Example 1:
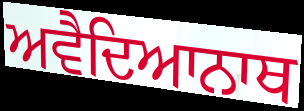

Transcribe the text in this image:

ਅਵੈਦਿਆਨਾਥ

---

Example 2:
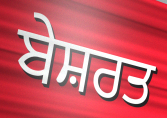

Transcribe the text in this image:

ਬੇਸ਼ਰਤ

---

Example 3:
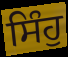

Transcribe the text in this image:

ਸਿੰਹੁ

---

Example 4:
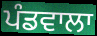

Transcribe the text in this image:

ਪੰਡਵਾਲਾ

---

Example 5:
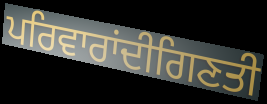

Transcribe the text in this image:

ਪਰਿਵਾਰਾਂਦੀਗਿਣਤੀ